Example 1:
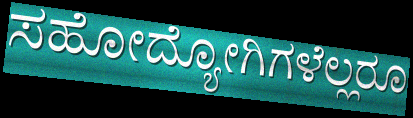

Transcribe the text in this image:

ಸಹೋದ್ಯೋಗಿಗಳೆಲ್ಲರೂ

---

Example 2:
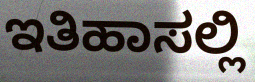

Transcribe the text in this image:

ಇತಿಹಾಸಲ್ಲಿ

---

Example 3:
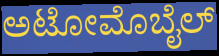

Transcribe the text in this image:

ಅಟೋಮೊಬೈಲ್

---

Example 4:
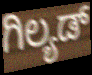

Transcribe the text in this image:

ಗಿಲ್ಯಡ್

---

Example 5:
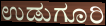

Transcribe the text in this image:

ಉಡುಗೂರಿ